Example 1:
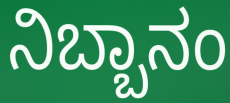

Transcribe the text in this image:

ನಿಬ್ಬಾನಂ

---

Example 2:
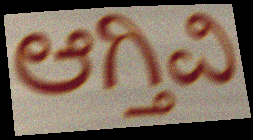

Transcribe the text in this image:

ಆಗ್ತಿವಿ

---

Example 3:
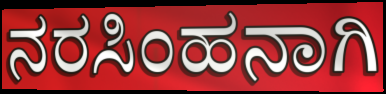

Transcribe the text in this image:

ನರಸಿಂಹನಾಗಿ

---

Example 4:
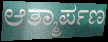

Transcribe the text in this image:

ಆತ್ಮಾರ್ಪಣ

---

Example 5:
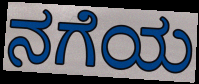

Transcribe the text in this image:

ನಗೆಯ